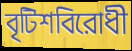
বৃটিশবিরোধী